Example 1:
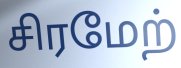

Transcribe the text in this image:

சிரமேற்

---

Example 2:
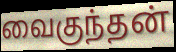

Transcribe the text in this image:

வைகுந்தன்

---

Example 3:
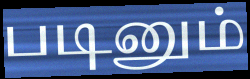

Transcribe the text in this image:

படினும்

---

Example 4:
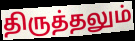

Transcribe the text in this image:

திருத்தலும்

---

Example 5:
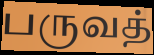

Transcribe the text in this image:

பருவத்